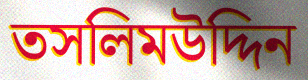
তসলিমউদ্দিন